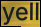
yell